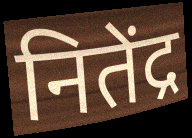
नितेंद्र